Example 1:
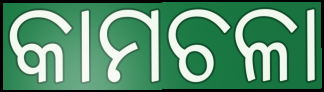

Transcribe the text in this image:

କାମଚଳା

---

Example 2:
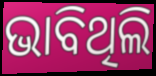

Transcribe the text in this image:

ଭାବିଥିଲି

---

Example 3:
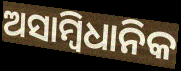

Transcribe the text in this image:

ଅସାମ୍ବିଧାନିକ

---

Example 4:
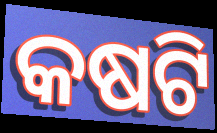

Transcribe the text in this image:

କଷଟି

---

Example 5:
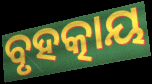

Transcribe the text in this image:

ବୃହତ୍କାୟ